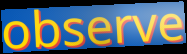
observe